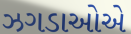
ઝગડાઓએ